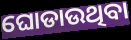
ଘୋଡାଉଥିବା